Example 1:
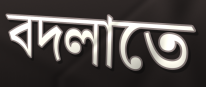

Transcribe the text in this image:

বদলাতে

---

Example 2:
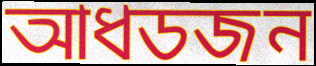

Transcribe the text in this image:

আধডজন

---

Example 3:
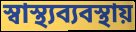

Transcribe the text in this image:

স্বাস্থ্যব্যবস্থায়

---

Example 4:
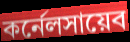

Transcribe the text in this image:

কর্নেলসায়েব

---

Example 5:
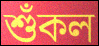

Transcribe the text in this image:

শুঁকল